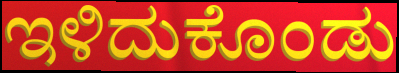
ಇಳಿದುಕೊಂಡು